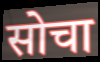
सोचा